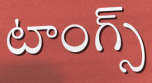
టాంగ్స్